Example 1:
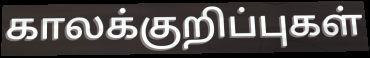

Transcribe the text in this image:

காலக்குறிப்புகள்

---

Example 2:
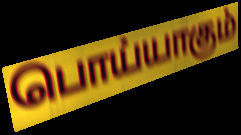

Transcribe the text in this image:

பொய்யாகும்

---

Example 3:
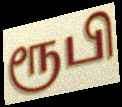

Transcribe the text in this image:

ரூபி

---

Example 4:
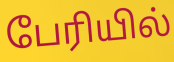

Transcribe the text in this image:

பேரியில்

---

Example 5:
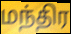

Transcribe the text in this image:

மந்திர